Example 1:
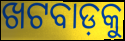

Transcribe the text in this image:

ଖଟବାଡ଼କୁ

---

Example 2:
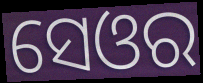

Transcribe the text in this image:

ସେଓର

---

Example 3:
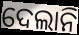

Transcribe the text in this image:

ଦେଲାନି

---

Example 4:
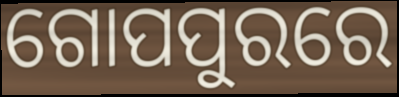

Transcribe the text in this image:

ଗୋପପୁରରେ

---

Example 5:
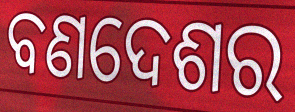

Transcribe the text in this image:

ବଣଦେଶର